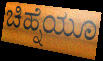
ಚಿಹ್ನೆಯೂ